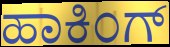
ಹಾಕಿಂಗ್